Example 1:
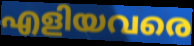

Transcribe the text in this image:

എളിയവരെ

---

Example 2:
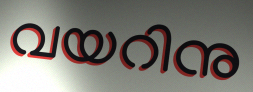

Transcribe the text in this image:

വയറിനു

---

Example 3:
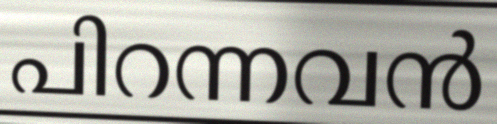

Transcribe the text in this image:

പിറന്നവൻ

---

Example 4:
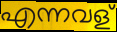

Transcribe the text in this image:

എന്നവള്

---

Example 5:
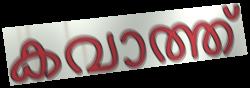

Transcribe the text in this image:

കവാത്ത്